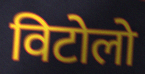
विटोलो